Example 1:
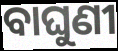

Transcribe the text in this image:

ବାଘୁଣୀ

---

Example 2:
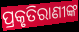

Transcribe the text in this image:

ପ୍ରକୃତିରାଣୀଙ୍କ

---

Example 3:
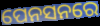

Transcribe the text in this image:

ପେନସନରେ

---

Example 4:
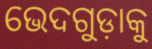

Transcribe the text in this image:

ଭେଦଗୁଡ଼ାକୁ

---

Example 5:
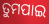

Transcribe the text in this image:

ତୁମପାଇ